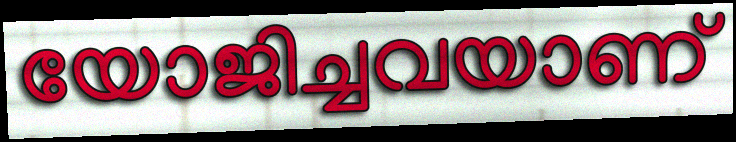
യോജിച്ചവയാണ്